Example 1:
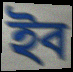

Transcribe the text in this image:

ইব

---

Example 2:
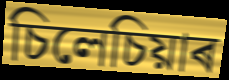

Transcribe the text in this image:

চিলেচিয়াৰ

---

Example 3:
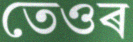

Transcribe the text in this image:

তেওৰ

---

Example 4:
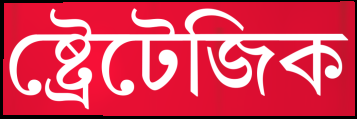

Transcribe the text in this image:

ষ্ট্ৰেটেজিক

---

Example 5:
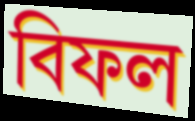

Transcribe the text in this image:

বিফল